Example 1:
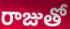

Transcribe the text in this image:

రాజుతో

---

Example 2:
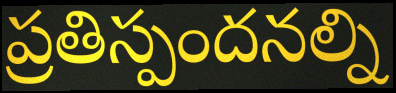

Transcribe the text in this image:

ప్రతిస్పందనల్ని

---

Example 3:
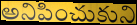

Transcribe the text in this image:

అనిపించుకుని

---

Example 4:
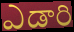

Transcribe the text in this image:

ఎడారి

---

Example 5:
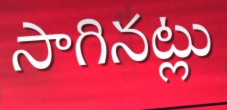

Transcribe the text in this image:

సాగినట్లు